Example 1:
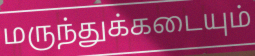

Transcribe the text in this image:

மருந்துக்கடையும்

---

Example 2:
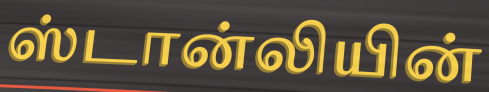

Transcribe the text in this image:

ஸ்டான்லியின்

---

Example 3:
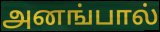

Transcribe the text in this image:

அனங்பால்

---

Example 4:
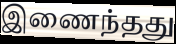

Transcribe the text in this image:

இணைந்தது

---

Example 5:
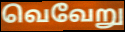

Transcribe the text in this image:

வெவேறு